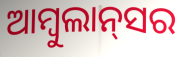
ଆମ୍ବୁଲାନ୍‌ସର